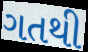
ગતથી